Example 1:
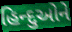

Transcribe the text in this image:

હિન્દુઓને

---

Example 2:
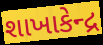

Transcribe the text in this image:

શાખાકેન્દ્ર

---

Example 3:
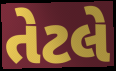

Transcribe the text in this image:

તેટલે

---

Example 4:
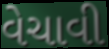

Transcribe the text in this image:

વેચાવી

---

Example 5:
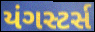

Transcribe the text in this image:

યંગસ્ટર્સ